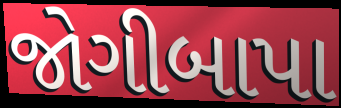
જોગીબાપા